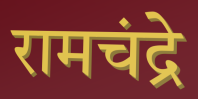
रामचंद्रे